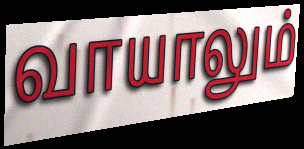
வாயாலும்